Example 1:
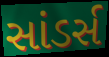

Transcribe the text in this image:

સાંડર્સ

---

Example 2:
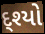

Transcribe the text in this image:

દ્શ્યો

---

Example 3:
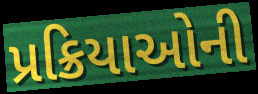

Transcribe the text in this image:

પ્રક્રિયાઓની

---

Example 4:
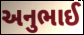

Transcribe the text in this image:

અનુભાઈ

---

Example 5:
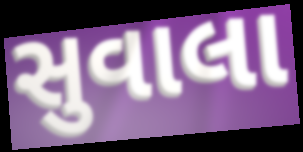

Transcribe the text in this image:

સુવાલા